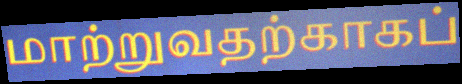
மாற்றுவதற்காகப்